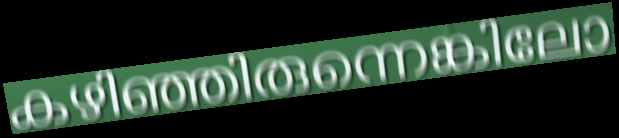
കഴിഞ്ഞിരുന്നെങ്കിലോ